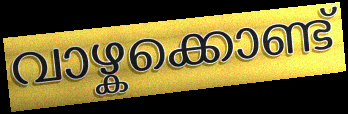
വാഴ്കക്കൊണ്ട്